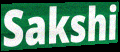
Sakshi